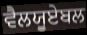
ਵੈਲਯੂਏਬਲ